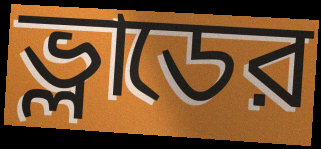
ভ্লাডের